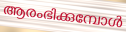
ആരംഭിക്കുമ്പോൾ